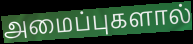
அமைப்புகளால்